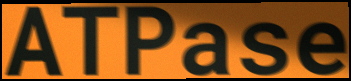
ATPase